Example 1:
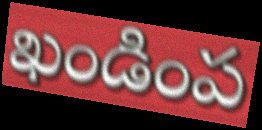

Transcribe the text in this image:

ఖండింప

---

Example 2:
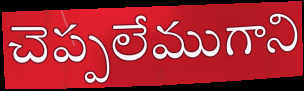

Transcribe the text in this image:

చెప్పలేముగాని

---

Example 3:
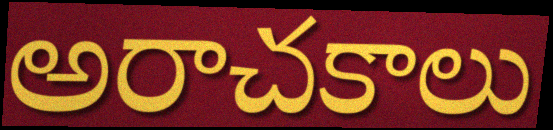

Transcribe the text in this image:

అరాచకాలు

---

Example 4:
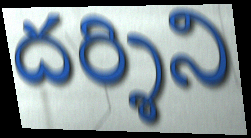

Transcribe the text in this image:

దర్శిని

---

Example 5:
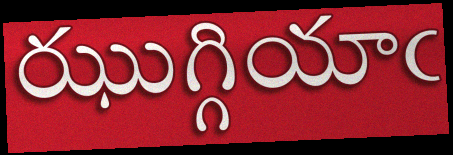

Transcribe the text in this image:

ఝుగ్గియాఁ